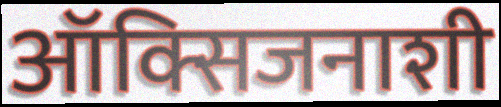
ऑक्सिजनाशी